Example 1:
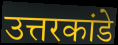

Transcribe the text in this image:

उत्तरकांडे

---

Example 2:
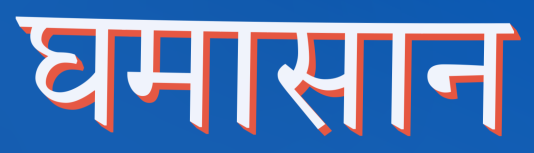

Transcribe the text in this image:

घमासान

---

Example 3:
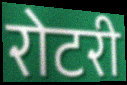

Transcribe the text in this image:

रोटरी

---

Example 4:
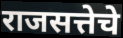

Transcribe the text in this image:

राजसत्तेचे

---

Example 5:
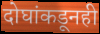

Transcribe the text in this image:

दोघांकडूनही